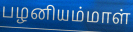
பழனியம்மாள்